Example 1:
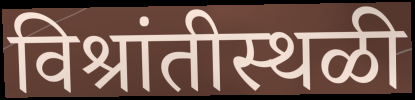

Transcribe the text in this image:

विश्रांतीस्थळी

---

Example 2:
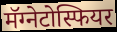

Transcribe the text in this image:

मॅग्नेटोस्फियर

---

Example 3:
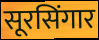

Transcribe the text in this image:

सूरसिंगार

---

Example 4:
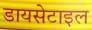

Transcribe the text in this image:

डायसेटाइल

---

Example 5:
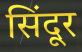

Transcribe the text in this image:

सिंदूर